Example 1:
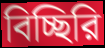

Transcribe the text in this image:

বিচ্ছিরি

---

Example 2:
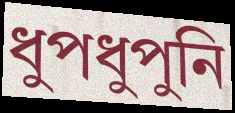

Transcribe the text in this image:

ধুপধুপুনি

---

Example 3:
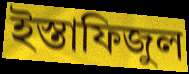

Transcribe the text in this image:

ইস্তাফিজুল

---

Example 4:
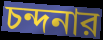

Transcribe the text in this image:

চন্দনার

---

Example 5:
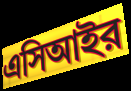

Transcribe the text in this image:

এসিআইর